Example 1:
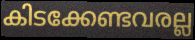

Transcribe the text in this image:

കിടക്കേണ്ടവരല്ല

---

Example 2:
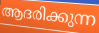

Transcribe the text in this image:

ആദരിക്കുന്ന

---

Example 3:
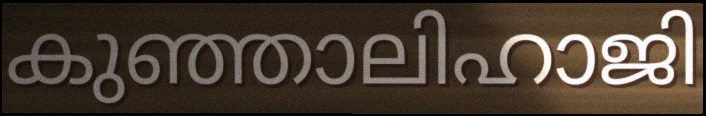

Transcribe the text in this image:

കുഞ്ഞാലിഹാജി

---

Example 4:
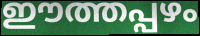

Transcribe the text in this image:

ഈത്തപ്പഴം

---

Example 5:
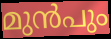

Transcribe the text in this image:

മുൻപും